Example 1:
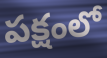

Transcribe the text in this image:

పక్షంలో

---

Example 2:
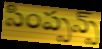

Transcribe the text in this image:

సింప్సన్స్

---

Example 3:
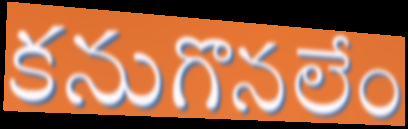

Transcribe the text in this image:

కనుగొనలేం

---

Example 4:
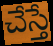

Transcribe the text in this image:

చేస్తే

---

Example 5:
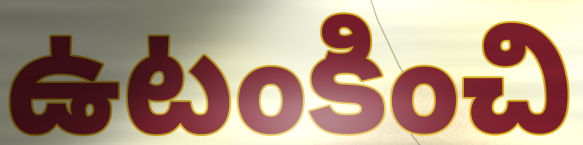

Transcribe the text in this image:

ఉటంకించి